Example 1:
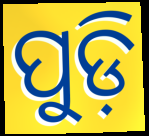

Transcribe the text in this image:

ପୁଡ଼ି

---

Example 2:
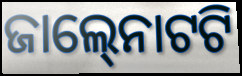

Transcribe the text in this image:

ଜାଲ୍‍ନୋଟଟି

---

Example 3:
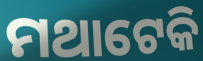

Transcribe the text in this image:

ମଥାଟେକି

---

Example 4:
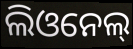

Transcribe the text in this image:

ଲିଓନେଲ୍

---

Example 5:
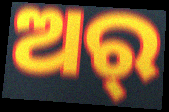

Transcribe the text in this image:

ଅର୍